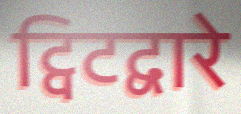
ट्विटद्वारे